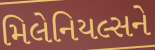
મિલેનિયલ્સને